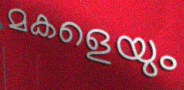
മകളെയും